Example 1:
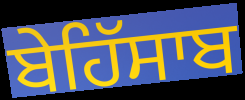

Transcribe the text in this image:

ਬੇਹਿੱਸਾਬ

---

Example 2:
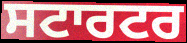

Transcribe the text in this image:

ਸਟਾਰਟਰ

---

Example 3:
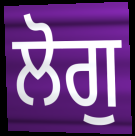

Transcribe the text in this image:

ਲੋਗੁ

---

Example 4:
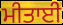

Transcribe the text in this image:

ਮੀਤਾਈ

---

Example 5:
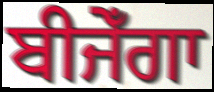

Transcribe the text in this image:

ਬੀਜੇਁਗਾ